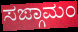
ಸಙ್ಗಾಮಂ